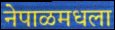
नेपाळमधला